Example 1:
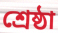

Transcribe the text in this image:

শ্রেষ্ঠা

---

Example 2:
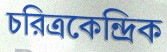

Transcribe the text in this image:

চরিত্রকেন্দ্রিক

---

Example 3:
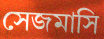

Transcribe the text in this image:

সেজমাসি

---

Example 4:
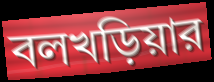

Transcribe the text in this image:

বলখড়িয়ার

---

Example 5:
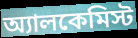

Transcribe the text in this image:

অ্যালকেমিস্ট